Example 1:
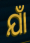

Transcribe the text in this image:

ଯାଁ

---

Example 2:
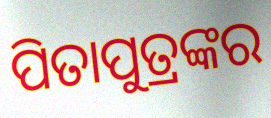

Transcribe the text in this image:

ପିତାପୁତ୍ରଙ୍କର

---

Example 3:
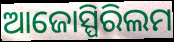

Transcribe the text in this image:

ଆଜୋସ୍ପିରିଲମ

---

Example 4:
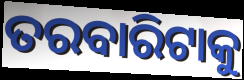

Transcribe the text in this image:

ତରବାରିଟାକୁ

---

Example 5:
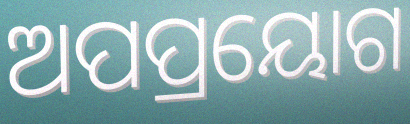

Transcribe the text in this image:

ଅପପ୍ରୟୋଗ